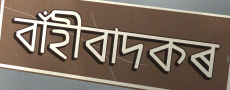
বাঁহীবাদকৰ